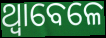
ଥ୍ବାବେଳେ